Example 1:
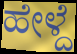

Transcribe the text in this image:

ಹೇಳ್ದೆ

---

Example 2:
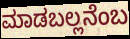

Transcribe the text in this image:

ಮಾಡಬಲ್ಲನೆಂಬ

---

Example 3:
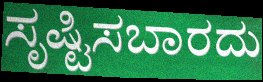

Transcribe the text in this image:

ಸೃಷ್ಟಿಸಬಾರದು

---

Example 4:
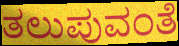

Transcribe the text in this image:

ತಲುಪುವಂತೆ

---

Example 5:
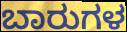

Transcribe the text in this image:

ಬಾರುಗಳ